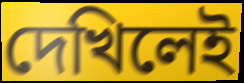
দেখিলেই